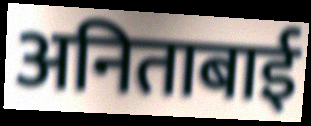
अनिताबाई